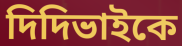
দিদিভাইকে